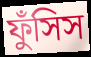
ফুঁসিস